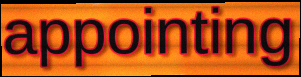
appointing